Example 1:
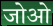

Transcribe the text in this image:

जोओ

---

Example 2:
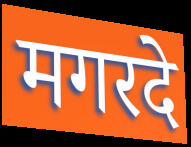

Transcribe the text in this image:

मगरदे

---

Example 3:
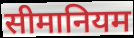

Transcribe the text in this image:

सीमानियम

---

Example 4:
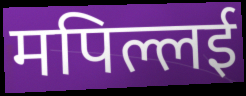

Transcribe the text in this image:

मपिल्लई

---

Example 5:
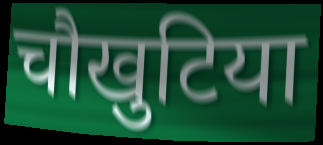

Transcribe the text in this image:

चौखुटिया